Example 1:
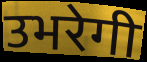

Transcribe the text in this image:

उभरेगी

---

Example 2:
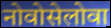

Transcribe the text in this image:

नोवोसेलोवा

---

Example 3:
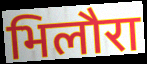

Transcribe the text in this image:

भिलौरा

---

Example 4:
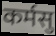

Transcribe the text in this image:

कर्मसु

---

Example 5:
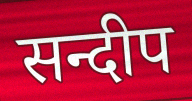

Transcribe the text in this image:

सन्दीप